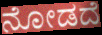
ನೋಡದೆ